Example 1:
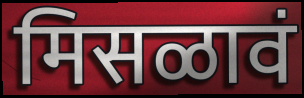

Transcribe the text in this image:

मिसळावं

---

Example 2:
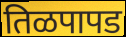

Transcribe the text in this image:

तिळपापड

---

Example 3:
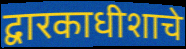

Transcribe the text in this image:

द्वारकाधीशाचे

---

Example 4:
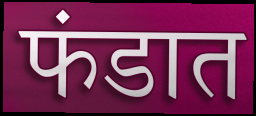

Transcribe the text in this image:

फंडात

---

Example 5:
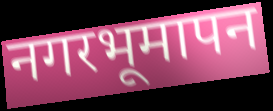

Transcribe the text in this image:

नगरभूमापन